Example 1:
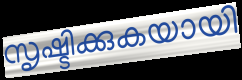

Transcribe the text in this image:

സൃഷ്ടിക്കുകയായി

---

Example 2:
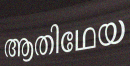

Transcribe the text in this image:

ആതിഥേയ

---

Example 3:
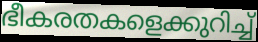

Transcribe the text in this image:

ഭീകരതകളെക്കുറിച്ച്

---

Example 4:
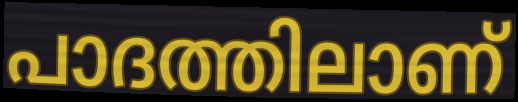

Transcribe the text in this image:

പാദത്തിലാണ്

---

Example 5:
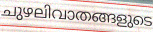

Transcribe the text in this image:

ചുഴലിവാതങ്ങളുടെ